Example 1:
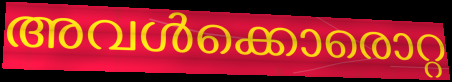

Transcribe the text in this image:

അവൾക്കൊരൊറ്റ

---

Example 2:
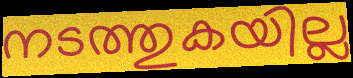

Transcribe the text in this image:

നടത്തുകയില്ല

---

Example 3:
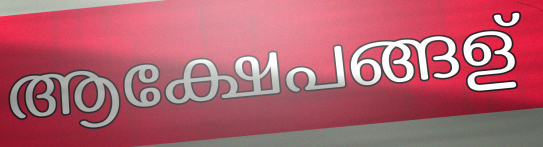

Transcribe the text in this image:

ആക്ഷേപങ്ങള്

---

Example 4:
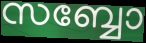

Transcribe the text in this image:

സബ്ബോ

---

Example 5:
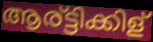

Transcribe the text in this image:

ആര്ട്ടിക്കിള്